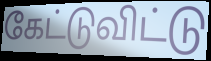
கேட்டுவிட்டு